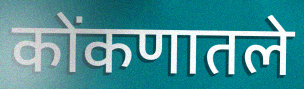
कोंकणातले